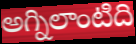
అగ్నిలాంటిది